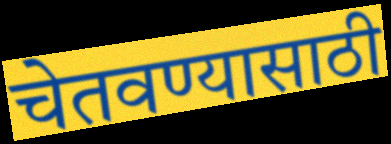
चेतवण्यासाठी